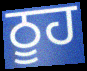
ਠੂਹ